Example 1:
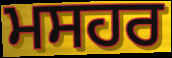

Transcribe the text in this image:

ਮਸਹਰ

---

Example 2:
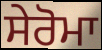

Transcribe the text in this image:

ਸੇਰੋਮਾ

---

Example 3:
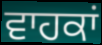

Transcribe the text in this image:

ਵਾਹਕਾਂ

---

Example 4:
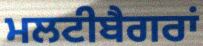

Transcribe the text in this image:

ਮਲਟੀਬੈਗਰਾਂ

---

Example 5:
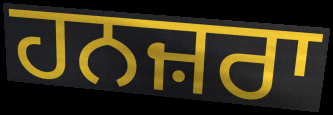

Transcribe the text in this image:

ਹਨਜ਼ਰਾ